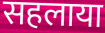
सहलाया